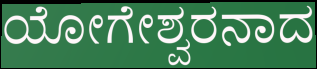
ಯೋಗೇಶ್ವರನಾದ